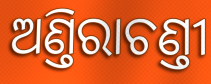
ଅଣ୍ତିରାଚଣ୍ତୀ